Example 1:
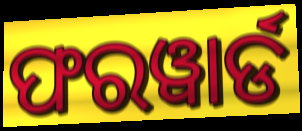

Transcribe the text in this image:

ଫରୱାର୍ଡ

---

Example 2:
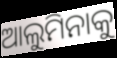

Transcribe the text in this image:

ଆଲୁମିନାକୁ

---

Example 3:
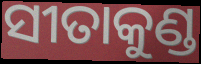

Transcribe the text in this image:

ସୀତାକୁଣ୍ଡ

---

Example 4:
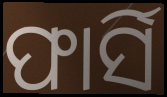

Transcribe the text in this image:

ଫାର୍ସି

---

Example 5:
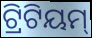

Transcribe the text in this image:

ଟ୍ରିଟିୟମ୍